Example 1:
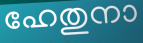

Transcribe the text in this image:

ഹേതുനാ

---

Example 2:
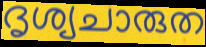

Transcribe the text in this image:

ദൃശ്യചാരുത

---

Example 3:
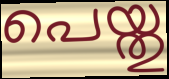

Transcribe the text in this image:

പെയ്തു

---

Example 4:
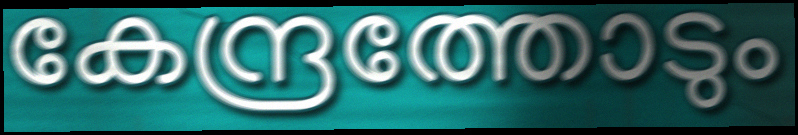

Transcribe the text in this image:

കേന്ദ്രത്തോടും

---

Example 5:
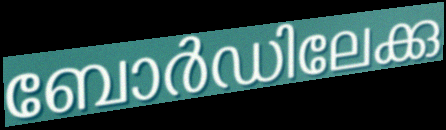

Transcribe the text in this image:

ബോർഡിലേക്കു